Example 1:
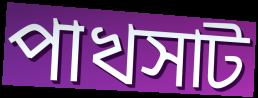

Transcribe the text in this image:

পাখসাট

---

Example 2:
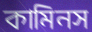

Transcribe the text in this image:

কামিনস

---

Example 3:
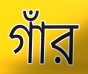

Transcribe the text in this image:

গাঁর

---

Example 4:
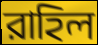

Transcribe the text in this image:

রাহিল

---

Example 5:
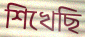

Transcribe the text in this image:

শিখেছি